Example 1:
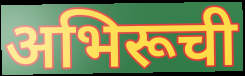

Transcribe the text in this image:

अभिरूची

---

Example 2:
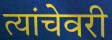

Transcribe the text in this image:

त्यांचेवरी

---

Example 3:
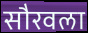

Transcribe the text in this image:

सौरवला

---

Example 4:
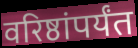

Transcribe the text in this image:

वरिष्ठांपर्यंत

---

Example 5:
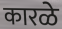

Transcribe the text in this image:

कारळे